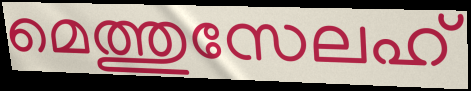
മെത്തുസേലഹ്